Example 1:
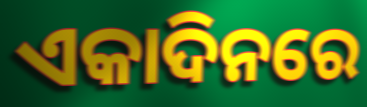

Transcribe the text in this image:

ଏକାଦିନରେ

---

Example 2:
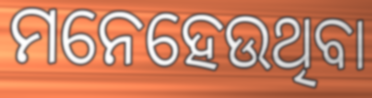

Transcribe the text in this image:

ମନେହେଉଥିବା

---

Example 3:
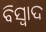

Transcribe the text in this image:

ବିସ୍ଵାଦ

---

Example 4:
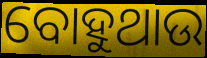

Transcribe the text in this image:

ବୋହୁଥାଉ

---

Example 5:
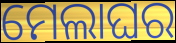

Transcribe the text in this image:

ମେଲାଘର